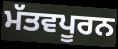
ਮੱਤਵਪੂਰਨ